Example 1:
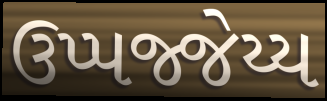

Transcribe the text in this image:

ઉપ્પજ્જેય્ય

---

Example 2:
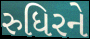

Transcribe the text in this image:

રુધિરને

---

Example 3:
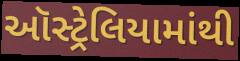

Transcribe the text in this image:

ઑસ્ટ્રેલિયામાંથી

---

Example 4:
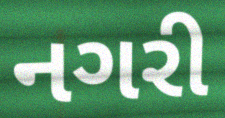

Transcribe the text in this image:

નગરી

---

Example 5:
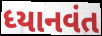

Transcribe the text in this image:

ધ્યાનવંત